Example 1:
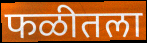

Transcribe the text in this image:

फळीतला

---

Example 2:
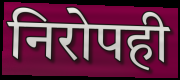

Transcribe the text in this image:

निरोपही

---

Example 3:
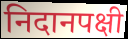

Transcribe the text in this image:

निदानपक्षी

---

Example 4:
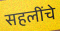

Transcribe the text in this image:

सहलींचे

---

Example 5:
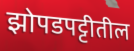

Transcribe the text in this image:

झोपडपट्टीतील